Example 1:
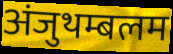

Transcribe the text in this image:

अंजुथम्बलम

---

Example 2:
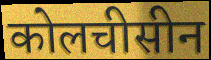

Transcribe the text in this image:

कोलचीसीन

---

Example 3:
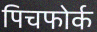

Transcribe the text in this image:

पिचफोर्क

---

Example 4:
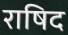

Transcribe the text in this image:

राषिद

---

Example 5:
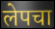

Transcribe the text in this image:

लेपचा